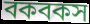
বকবকস